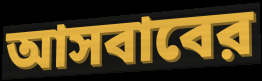
আসবাবের